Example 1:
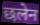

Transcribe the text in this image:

छलेन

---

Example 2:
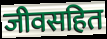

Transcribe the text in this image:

जीवसहित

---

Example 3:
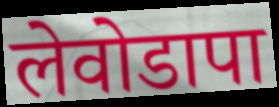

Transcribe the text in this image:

लेवोडापा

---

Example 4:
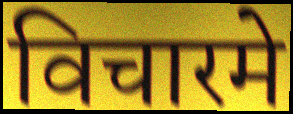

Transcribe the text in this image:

विचारमे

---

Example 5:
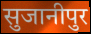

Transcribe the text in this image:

सुजानीपुर